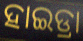
ହାଇଡ୍ରା